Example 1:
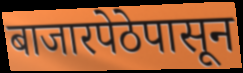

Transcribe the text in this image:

बाजारपेठेपासून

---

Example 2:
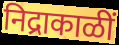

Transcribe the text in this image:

निद्राकाळीं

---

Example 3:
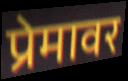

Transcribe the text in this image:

प्रेमावर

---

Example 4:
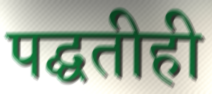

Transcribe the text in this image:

पद्घतीही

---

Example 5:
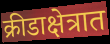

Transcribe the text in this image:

क्रीडाक्षेत्रात